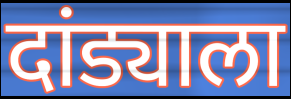
दांड्याला